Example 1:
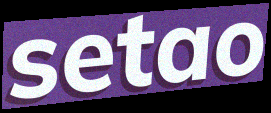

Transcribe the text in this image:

setao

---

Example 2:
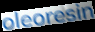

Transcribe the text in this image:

oleoresin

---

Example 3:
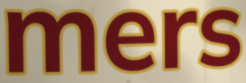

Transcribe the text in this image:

mers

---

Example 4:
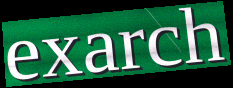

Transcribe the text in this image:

exarch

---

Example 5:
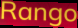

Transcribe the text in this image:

Rango